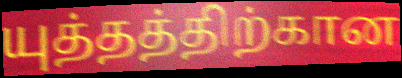
யுத்தத்திற்கான